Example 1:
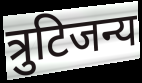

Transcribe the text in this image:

त्रुटिजन्य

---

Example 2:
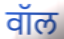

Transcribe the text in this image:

वॉल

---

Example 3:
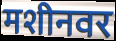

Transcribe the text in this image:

मशीनवर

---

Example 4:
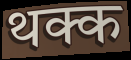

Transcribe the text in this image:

थक्क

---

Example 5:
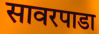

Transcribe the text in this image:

सावरपाडा